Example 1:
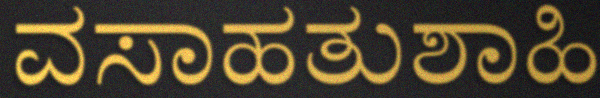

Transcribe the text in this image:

ವಸಾಹತುಶಾಹಿ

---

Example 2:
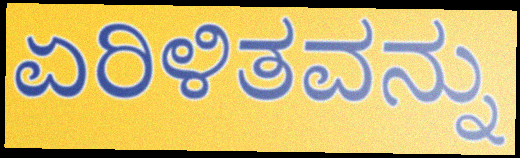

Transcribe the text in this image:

ಏರಿಳಿತವನ್ನು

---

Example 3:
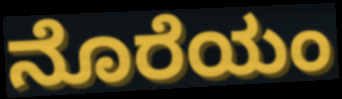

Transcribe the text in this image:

ನೊರೆಯಂ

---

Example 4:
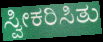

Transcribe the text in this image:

ಸ್ವೀಕರಿಸಿತು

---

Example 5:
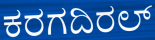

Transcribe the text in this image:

ಕರಗದಿರಲ್